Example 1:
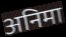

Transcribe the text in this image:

अनिमा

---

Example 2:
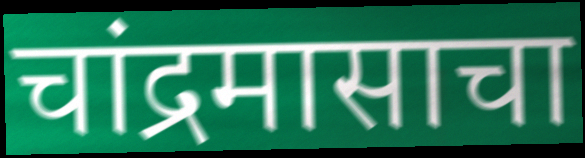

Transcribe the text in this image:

चांद्रमासाचा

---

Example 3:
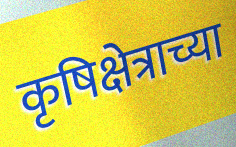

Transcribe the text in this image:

कृषिक्षेत्राच्या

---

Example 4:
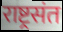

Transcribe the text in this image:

राष्ट्रसंत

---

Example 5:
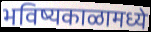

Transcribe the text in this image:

भविष्यकाळामध्ये